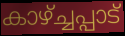
കാഴ്ച്ചപ്പാട്